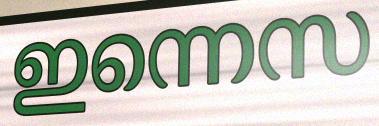
ഇന്നെസ